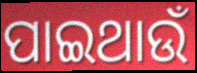
ପାଇଥାଉଁ